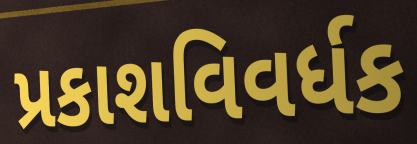
પ્રકાશવિવર્ધક